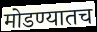
मोडण्यातच